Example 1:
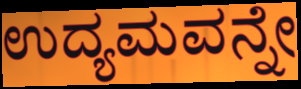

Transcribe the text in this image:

ಉದ್ಯಮವನ್ನೇ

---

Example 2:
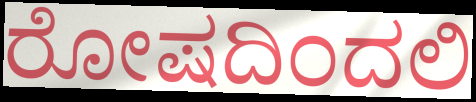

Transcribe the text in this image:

ರೋಷದಿಂದಲಿ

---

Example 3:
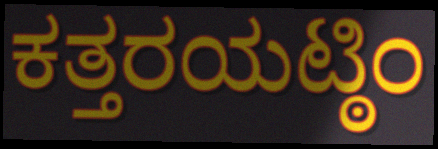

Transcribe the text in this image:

ಕತ್ತರಯಟ್ಠಿಂ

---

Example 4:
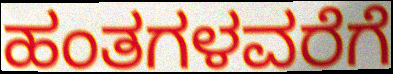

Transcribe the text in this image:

ಹಂತಗಳವರೆಗೆ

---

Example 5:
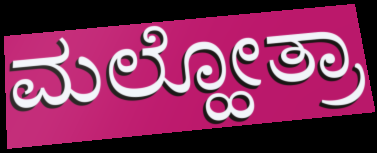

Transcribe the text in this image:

ಮಲ್ಹೋತ್ರಾ